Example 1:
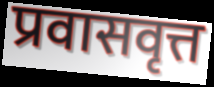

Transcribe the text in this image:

प्रवासवृत्त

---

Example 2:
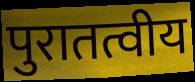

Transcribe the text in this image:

पुरातत्वीय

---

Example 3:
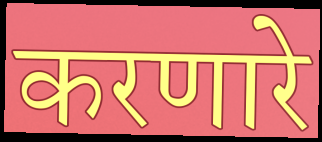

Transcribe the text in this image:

करणारे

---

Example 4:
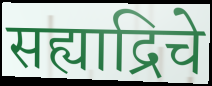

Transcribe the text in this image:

सह्याद्रिचे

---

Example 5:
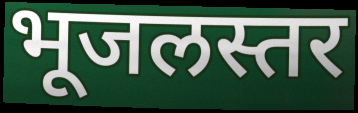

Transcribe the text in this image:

भूजलस्तर